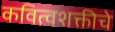
कवित्वशक्तीचे